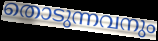
തൊടുന്നവനും